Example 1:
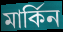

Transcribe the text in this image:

মার্কিন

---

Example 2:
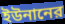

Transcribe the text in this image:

ইউনানের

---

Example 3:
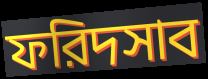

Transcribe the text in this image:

ফরিদসাব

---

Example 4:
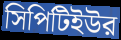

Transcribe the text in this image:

সিপিটিইউর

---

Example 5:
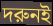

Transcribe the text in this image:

দরুনই